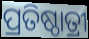
ପ୍ରତିଷ୍ଠାତ୍ରୀ